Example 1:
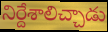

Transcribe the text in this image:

నిర్దేశాలిచ్చాడు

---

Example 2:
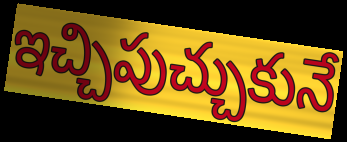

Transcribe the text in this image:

ఇచ్చిపుచ్చుకునే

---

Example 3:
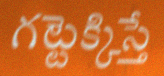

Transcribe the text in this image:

గట్టెక్కిస్తే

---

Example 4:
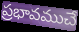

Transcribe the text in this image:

ప్రభావముచే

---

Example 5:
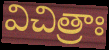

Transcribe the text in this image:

విచిత్రాః